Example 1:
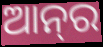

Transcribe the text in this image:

ଆନ୍‌ର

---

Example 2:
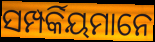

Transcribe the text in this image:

ସମ୍ପର୍କିୟମାନେ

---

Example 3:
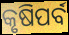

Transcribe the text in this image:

କୃଷିପର୍ବ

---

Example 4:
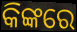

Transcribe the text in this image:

କିଙ୍କରେ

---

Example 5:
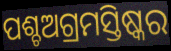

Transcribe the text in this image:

ପଶ୍ଚଅଗ୍ରମସ୍ତିଷ୍କର